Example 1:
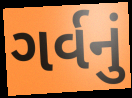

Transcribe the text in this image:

ગર્વનું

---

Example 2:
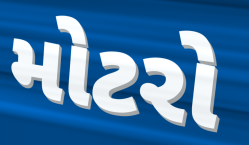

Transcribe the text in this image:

મોટરો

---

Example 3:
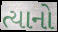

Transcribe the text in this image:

ત્યાનો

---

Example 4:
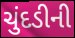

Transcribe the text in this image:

ચુંદડીની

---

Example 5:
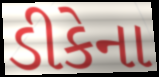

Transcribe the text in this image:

ડીકેના